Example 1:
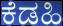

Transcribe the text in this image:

ಕೆಡಹಿ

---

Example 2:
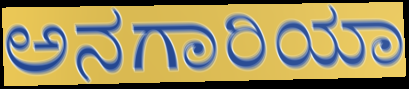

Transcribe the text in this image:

ಅನಗಾರಿಯಾ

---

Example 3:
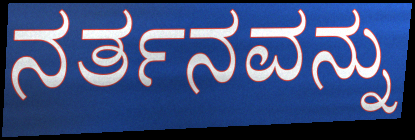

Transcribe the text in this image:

ನರ್ತನವನ್ನು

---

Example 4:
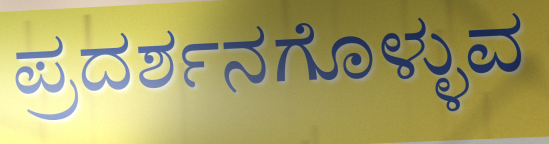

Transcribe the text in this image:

ಪ್ರದರ್ಶನಗೊಳ್ಳುವ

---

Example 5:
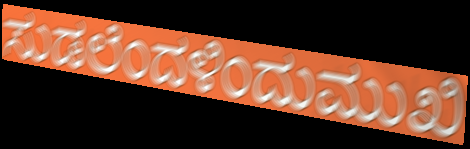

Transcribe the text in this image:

ಸುಡಲೆಂದಳಿಂದುಮುಖಿ